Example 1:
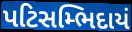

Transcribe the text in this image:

પટિસમ્ભિદાયં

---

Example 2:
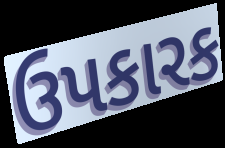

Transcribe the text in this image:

ઉપકારક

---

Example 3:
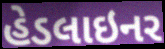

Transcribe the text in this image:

હેડલાઇનર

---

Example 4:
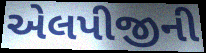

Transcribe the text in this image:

એલપીજીની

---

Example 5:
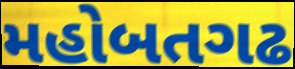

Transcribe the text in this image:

મહોબતગઢ